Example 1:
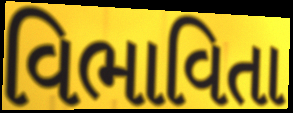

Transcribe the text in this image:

વિભાવિતા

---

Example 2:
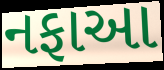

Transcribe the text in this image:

નફાઆ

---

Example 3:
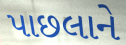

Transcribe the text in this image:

પાછલાને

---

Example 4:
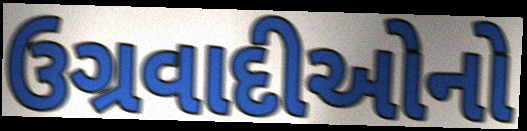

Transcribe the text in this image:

ઉગ્રવાદીઓનો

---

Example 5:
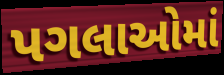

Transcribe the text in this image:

પગલાઓમાં